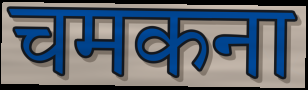
चमकना